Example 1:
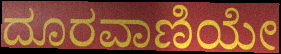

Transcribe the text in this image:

ದೂರವಾಣಿಯೇ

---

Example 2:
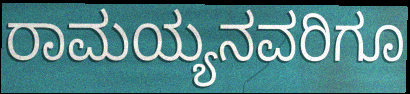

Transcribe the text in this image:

ರಾಮಯ್ಯನವರಿಗೂ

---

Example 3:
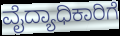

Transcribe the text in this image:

ವೈದ್ಯಾಧಿಕಾರಿಗೆ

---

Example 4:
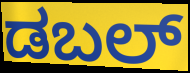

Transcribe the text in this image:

ಡಬಲ್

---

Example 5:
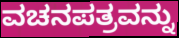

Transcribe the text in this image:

ವಚನಪತ್ರವನ್ನು